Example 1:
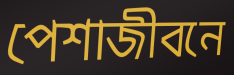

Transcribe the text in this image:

পেশাজীবনে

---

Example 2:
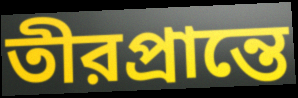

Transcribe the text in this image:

তীরপ্রান্তে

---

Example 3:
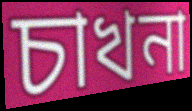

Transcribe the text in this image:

চাখনা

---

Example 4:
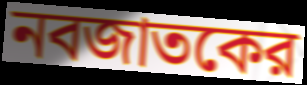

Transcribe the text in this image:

নবজাতকের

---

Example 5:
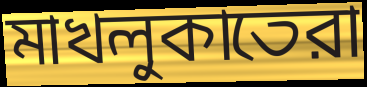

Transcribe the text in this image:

মাখলুকাতেরা